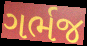
ગર્ભજ